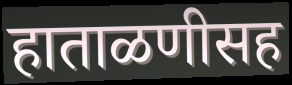
हाताळणीसह